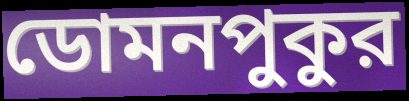
ডোমনপুকুর